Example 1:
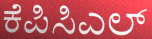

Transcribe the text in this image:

ಕೆಪಿಸಿಎಲ್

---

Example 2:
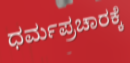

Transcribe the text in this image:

ಧರ್ಮಪ್ರಚಾರಕ್ಕೆ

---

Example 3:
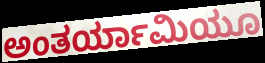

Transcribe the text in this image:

ಅಂತರ್ಯಾಮಿಯೂ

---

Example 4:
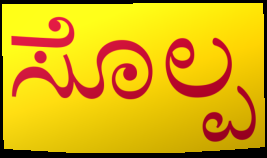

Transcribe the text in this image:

ಸೊಲ್ಪ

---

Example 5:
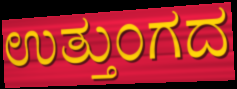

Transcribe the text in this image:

ಉತ್ತುಂಗದ